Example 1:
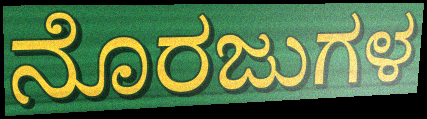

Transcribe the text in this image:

ನೊರಜುಗಳ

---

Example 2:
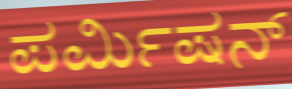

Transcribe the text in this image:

ಪರ್ಮಿಷನ್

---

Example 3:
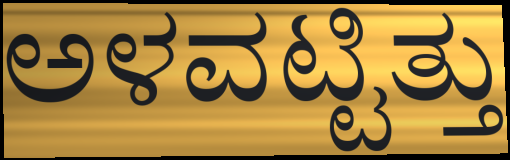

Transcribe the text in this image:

ಅಳವಟ್ಟಿತ್ತು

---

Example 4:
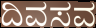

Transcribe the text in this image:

ದಿವಸವ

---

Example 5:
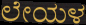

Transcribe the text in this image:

ಲೇಯಳ